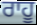
ਰਾਹੂ